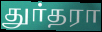
துர்தரா